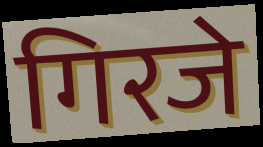
गिरजे